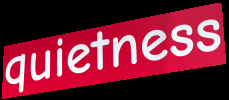
quietness